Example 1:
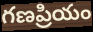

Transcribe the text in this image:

గణప్రియం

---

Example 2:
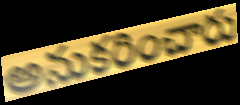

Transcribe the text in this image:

అనుకరించారు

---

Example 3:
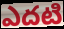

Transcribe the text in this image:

ఎదటి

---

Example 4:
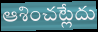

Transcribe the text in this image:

ఆశించట్లేదు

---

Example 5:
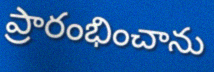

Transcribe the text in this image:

ప్రారంభించాను